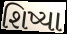
શિષ્યા